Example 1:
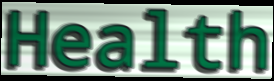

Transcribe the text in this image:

Health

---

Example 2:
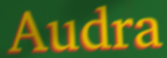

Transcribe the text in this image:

Audra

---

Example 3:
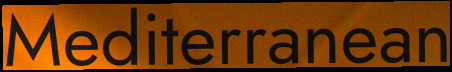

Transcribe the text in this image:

Mediterranean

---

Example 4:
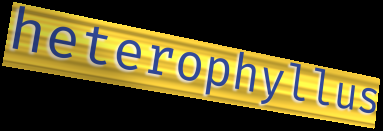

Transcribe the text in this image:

heterophyllus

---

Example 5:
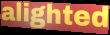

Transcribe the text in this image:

alighted